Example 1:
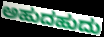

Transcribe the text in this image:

ಅಹುದಹುದು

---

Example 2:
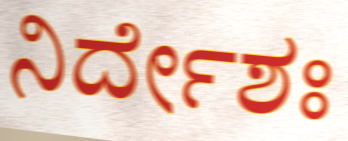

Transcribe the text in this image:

ನಿರ್ದೇಶಃ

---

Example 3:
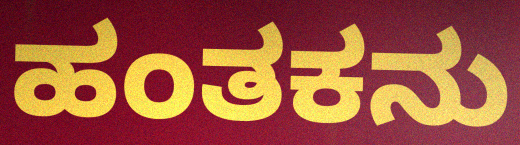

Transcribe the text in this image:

ಹಂತಕನು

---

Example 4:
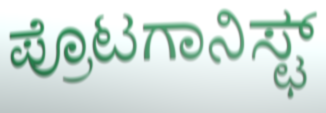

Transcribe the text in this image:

ಪ್ರೊಟಗಾನಿಸ್ಟ್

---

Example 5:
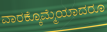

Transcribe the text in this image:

ವಾರಕ್ಕೊಮ್ಮೆಯಾದರೂ